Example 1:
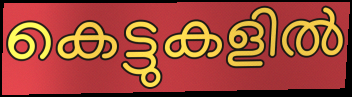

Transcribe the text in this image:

കെട്ടുകളിൽ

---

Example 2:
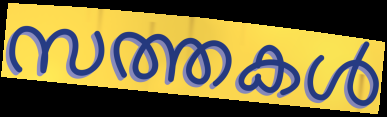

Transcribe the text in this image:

സത്തകൾ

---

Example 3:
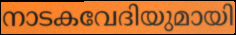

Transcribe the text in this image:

നാടകവേദിയുമായി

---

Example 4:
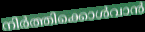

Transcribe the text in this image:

നിർത്തിക്കൊൾവാൻ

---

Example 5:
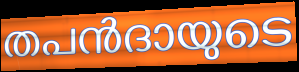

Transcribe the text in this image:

തപൻദായുടെ